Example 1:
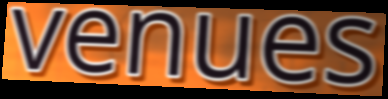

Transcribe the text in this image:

venues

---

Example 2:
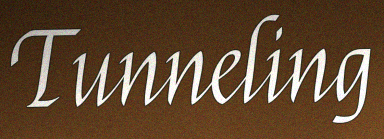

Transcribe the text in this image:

Tunneling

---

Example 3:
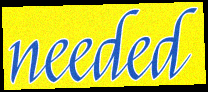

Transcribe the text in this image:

needed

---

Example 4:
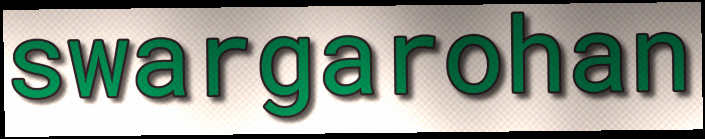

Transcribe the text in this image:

swargarohan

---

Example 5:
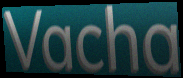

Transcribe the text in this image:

Vacha